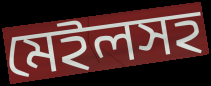
মেইলসহ